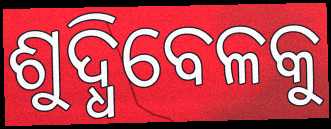
ଶୁଦ୍ଧିବେଳକୁ